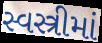
સ્વસ્ત્રીમાં